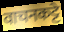
वाचनकट्टे